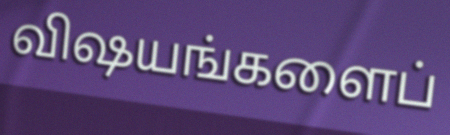
விஷயங்களைப்